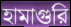
হামাগুরি